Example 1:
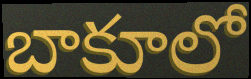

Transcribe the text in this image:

బాకూలో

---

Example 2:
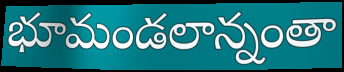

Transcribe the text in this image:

భూమండలాన్నంతా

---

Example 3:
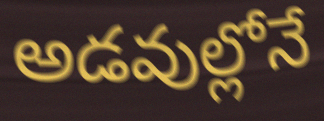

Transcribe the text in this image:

అడవుల్లోనే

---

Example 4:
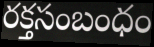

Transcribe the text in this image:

రక్తసంబంధం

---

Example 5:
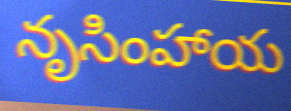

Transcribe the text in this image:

నృసింహాయ